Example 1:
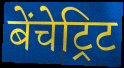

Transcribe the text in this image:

बेंचेट्रिट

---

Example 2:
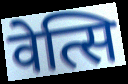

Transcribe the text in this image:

वेत्सि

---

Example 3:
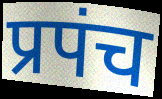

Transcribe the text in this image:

प्रपंच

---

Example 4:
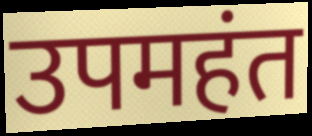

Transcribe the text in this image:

उपमहंत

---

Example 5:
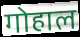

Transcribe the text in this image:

गोहाल